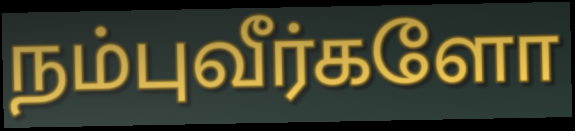
நம்புவீர்களோ